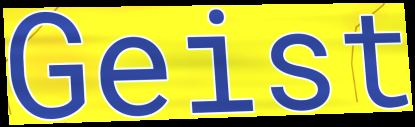
Geist